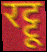
रट्टू